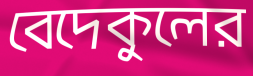
বেদেকুলের